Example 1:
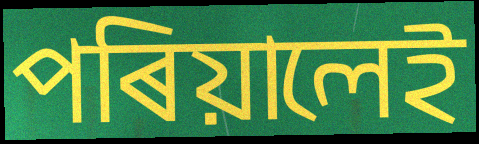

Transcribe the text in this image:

পৰিয়ালেই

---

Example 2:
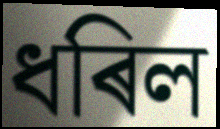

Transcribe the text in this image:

ধৰিল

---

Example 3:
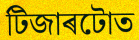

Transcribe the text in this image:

টিজাৰটোত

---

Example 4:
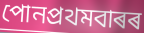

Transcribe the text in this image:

পোনপ্ৰথমবাৰৰ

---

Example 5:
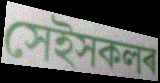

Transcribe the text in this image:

সেইসকলৰ